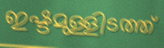
ഇഷ്ടമുള്ളിടത്ത്